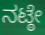
ನಟ್ಠೇ